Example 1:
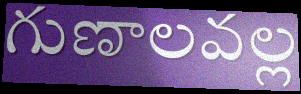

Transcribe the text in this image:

గుణాలవల్ల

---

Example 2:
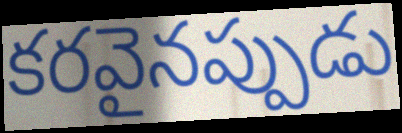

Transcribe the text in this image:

కరవైనప్పుడు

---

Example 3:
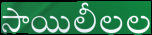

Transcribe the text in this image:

సాయిలీలల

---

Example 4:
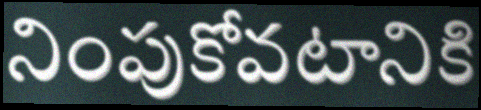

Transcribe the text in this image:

నింపుకోవటానికి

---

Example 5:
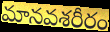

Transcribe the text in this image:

మానవశరీరం